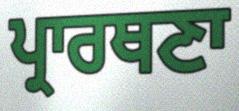
ਪ੍ਰਾਰਥਣਾ